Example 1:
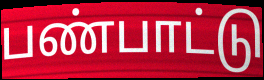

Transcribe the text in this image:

பண்பாட்டு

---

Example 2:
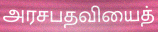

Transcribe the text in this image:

அரசபதவியைத்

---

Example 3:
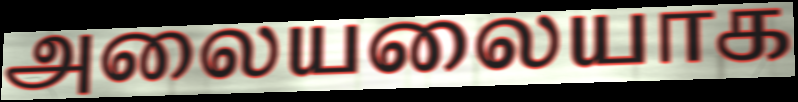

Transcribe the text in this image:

அலையலையாக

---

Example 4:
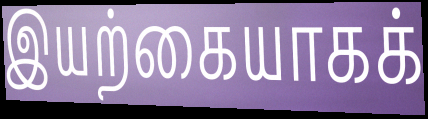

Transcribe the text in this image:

இயற்கையாகக்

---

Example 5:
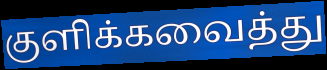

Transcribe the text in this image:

குளிக்கவைத்து